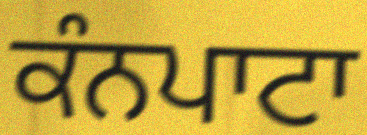
ਕੰਨਪਾਟਾ